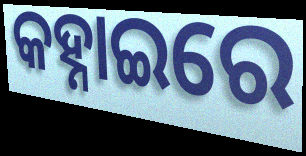
କହ୍ନାଇରେ